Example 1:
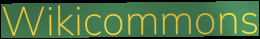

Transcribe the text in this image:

Wikicommons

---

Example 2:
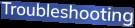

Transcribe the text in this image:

Troubleshooting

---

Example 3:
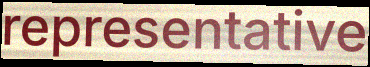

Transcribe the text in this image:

representative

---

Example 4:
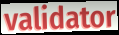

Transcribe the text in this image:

validator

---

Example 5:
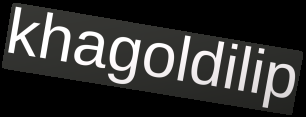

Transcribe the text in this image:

khagoldilip